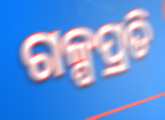
ଗଳ୍ପପ୍ରତି